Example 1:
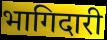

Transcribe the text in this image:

भागिदारी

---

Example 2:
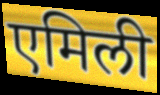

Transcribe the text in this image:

एमिली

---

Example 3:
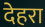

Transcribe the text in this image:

देहरा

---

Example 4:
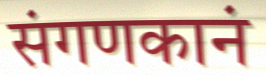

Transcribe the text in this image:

संगणकानं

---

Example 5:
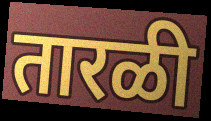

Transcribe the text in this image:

तारळी